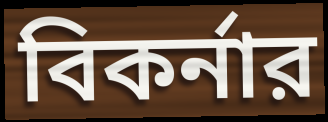
বিকর্নার